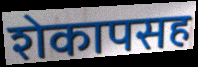
शेकापसह